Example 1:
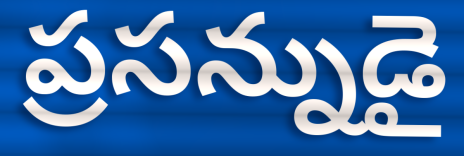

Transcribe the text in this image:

ప్రసన్నుడై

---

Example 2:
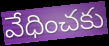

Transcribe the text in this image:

వేధించకు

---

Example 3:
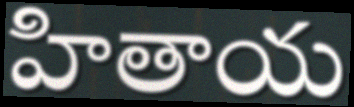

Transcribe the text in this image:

హితాయ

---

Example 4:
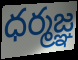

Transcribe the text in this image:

ధర్మజ్ఞ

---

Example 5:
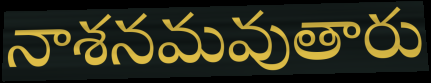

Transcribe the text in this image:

నాశనమవుతారు